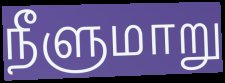
நீளுமாறு